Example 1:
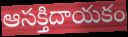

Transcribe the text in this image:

ఆసక్తిదాయకం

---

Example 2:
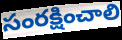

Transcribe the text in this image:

సంరక్షించాలి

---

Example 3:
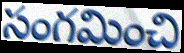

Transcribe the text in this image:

సంగమించి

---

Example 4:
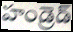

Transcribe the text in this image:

హండ్రెడ్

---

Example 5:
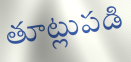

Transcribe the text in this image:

తూట్లుపడి